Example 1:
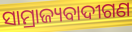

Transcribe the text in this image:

ସାମ୍ରାଜ୍ୟବାଦୀଗଣ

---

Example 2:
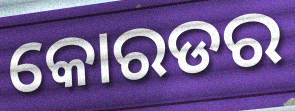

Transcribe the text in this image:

କୋରଡର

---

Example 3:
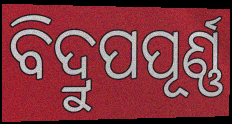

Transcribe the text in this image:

ବିଦ୍ରୁପପୂର୍ଣ୍ଣ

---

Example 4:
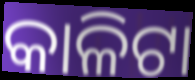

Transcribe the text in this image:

କାଳିଟା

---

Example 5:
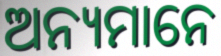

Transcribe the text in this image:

ଅନ୍ଯମାନେ